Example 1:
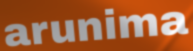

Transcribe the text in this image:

arunima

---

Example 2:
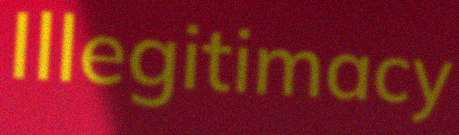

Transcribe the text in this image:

Illegitimacy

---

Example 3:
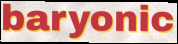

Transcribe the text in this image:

baryonic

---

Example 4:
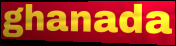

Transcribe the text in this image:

ghanada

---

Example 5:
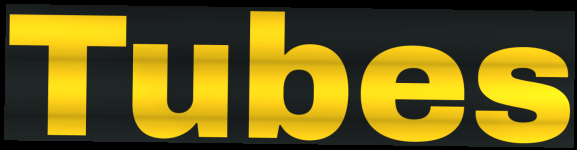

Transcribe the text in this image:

Tubes